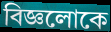
বিজ্ঞলোকে